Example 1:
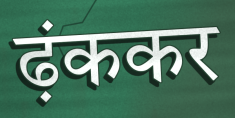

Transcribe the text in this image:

ढ़ंककर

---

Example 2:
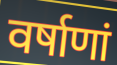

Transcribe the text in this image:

वर्षाणां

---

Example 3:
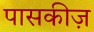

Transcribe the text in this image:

पासकीज़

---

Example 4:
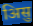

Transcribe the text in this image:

अिसु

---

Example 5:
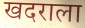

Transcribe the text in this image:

खदराला